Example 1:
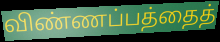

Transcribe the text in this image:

விண்ணப்பத்தைத்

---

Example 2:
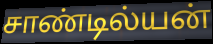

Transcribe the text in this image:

சாண்டில்யன்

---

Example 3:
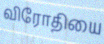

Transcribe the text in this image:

விரோதியை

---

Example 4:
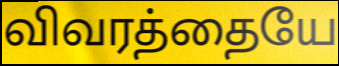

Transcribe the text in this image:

விவரத்தையே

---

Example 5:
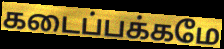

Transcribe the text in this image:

கடைப்பக்கமே